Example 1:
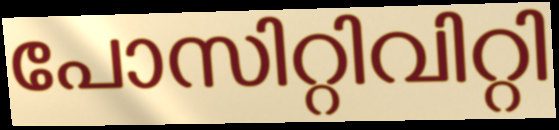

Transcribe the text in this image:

പോസിറ്റിവിറ്റി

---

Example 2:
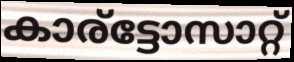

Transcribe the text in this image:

കാര്ട്ടോസാറ്റ്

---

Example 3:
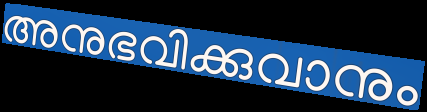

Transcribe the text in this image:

അനുഭവിക്കുവാനും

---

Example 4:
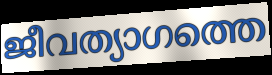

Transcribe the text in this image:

ജീവത്യാഗത്തെ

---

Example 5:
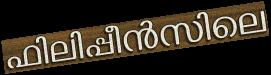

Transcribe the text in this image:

ഫിലിപ്പീൻസിലെ